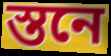
স্তনে